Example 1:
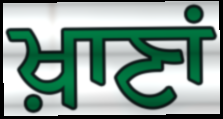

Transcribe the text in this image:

ਖ਼ਾਣਾਂ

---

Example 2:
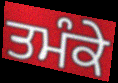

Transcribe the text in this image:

ਤਮੰਕੇ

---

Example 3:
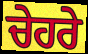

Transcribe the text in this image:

ਚੇਹਰੇ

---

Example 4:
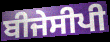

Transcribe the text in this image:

ਬੀਜੇਸੀਪੀ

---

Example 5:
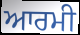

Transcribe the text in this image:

ਆਰਮੀ